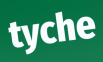
tyche